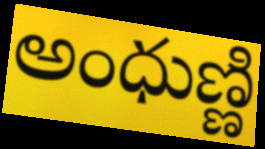
అంధుణ్ణి